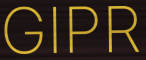
GIPR